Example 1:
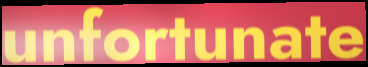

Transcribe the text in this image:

unfortunate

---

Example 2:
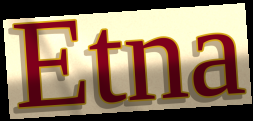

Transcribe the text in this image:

Etna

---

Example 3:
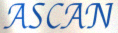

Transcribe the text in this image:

ASCAN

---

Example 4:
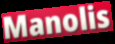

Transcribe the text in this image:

Manolis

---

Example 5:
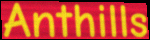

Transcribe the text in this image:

Anthills